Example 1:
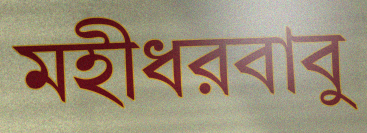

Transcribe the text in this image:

মহীধরবাবু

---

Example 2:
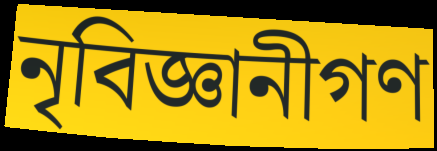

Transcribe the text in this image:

নৃবিজ্ঞানীগণ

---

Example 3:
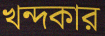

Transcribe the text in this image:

খন্দকার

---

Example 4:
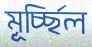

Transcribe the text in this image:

মূর্চ্ছিল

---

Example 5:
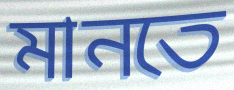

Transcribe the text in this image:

মানতে